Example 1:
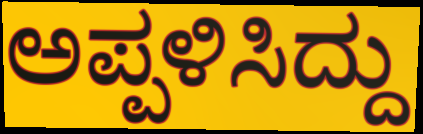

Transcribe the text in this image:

ಅಪ್ಪಳಿಸಿದ್ದು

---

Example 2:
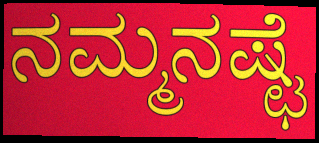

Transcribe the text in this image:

ನಮ್ಮನಷ್ಟೆ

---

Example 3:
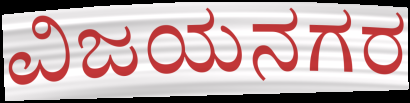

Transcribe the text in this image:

ವಿಜಯನಗರ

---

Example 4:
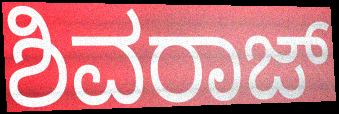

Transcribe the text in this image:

ಶಿವರಾಜ್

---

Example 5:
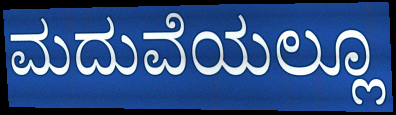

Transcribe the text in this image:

ಮದುವೆಯಲ್ಲೂ